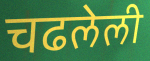
चढलेली